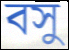
বসু